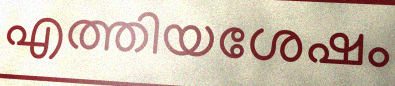
എത്തിയശേഷം